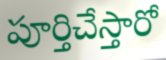
పూర్తిచేస్తారో